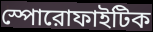
স্পোরোফাইটিক